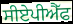
ਸੀਏਪੀਐੱਫ